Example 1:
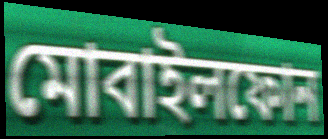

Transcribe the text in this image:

মোবাইলফোন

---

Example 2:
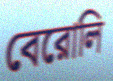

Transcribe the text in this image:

বেরোলি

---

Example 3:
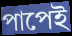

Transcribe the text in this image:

পাপেই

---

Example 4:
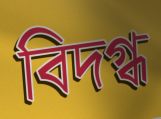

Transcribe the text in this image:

বিদগ্ধ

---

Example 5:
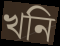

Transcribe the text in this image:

খনি